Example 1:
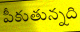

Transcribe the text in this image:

పీకుతున్నది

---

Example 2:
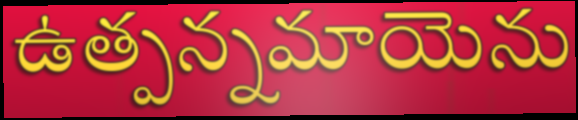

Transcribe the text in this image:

ఉత్పన్నమాయెను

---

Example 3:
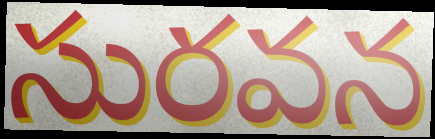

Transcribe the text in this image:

సురవన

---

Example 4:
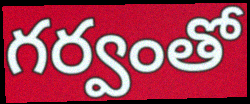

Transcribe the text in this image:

గర్వంతో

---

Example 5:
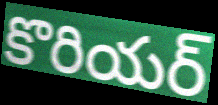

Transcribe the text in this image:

కొరియర్